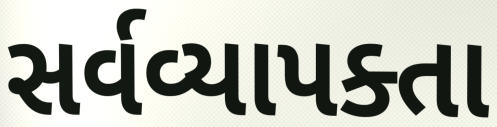
સર્વવ્યાપક્તા